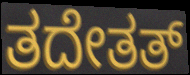
ತದೇತತ್